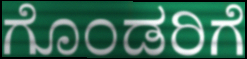
ಗೊಂಡರಿಗೆ